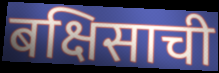
बक्षिसाची